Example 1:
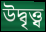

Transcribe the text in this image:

উদ্বৃত্ত্ব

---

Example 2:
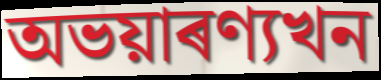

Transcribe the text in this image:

অভয়াৰণ্যখন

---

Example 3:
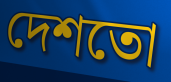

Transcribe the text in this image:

দেশতো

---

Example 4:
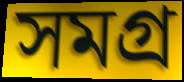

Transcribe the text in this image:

সমগ্ৰ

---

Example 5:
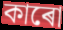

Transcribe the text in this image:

কাৰো